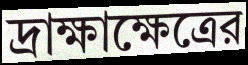
দ্রাক্ষাক্ষেত্রের